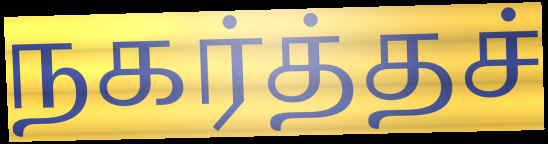
நகர்த்தச்